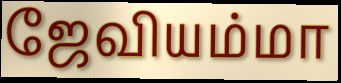
ஜேவியம்மா